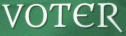
VOTER